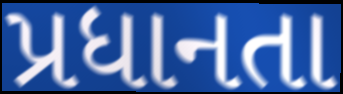
પ્રધાનતા